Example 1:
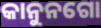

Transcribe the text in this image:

କାନୁନଗୋ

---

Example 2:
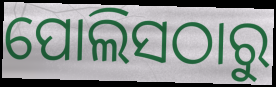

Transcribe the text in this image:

ପୋଲିସଠାରୁ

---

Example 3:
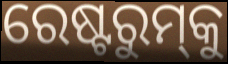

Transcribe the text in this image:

ରେଷ୍ଟରୁମ୍‌କୁ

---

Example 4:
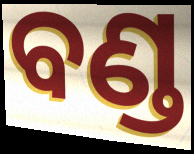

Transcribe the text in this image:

ବଣ୍ଡ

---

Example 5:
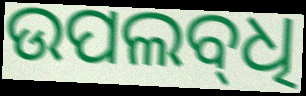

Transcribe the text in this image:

ଉପଲବ୍‍ଧି